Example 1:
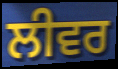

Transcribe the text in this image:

ਲੀਵਰ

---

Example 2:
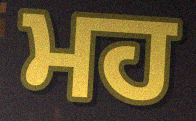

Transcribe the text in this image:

ਮਹ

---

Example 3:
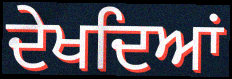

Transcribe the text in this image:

ਦੇਖਦਿਆਂ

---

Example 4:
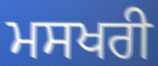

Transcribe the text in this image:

ਮਸਖਰੀ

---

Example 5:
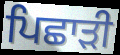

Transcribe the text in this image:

ਪਿਛਾੜੀ